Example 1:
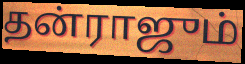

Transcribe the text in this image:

தன்ராஜும்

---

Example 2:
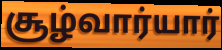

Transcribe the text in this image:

சூழ்வார்யார்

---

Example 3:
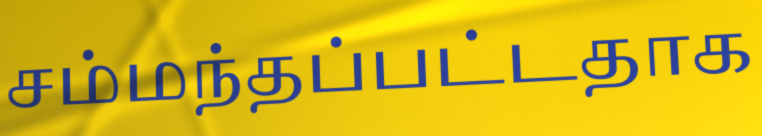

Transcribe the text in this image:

சம்மந்தப்பட்டதாக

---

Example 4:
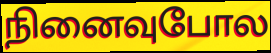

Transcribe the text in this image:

நினைவுபோல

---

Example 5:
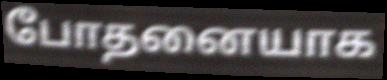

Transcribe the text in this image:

போதனையாக